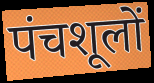
पंचशूलों